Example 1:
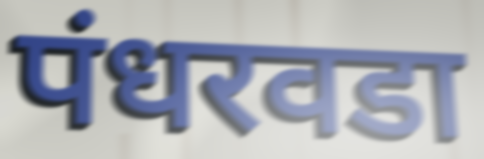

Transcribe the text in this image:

पंधरवडा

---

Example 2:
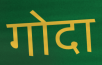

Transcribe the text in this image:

गोदा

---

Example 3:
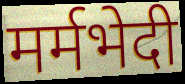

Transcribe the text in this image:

मर्मभेदी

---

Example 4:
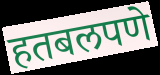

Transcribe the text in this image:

हतबलपणे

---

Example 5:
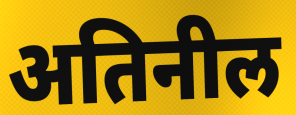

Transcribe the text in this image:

अतिनील